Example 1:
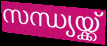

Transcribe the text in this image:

സന്ധ്യയ്ക്ക്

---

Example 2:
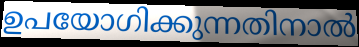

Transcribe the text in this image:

ഉപയോഗിക്കുന്നതിനാൽ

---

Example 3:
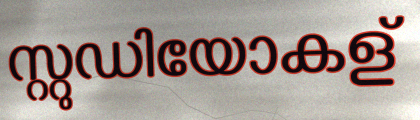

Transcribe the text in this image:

സ്റ്റുഡിയോകള്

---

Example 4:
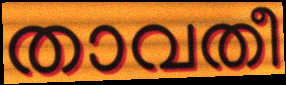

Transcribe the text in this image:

താവതീ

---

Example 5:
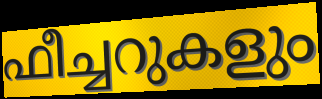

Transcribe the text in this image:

ഫീച്ചറുകളും